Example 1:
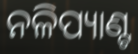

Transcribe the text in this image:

ନଳିପ୍ୟାଣ୍ଟ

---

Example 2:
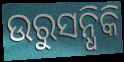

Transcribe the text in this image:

ଉରୁସନ୍ଧିକି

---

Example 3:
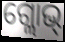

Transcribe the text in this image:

ଗ୍ଲୋଭ୍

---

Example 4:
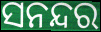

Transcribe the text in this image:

ସନନ୍ଦର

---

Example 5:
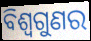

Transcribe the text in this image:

ବିଶ୍ୱଗୁଣର